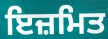
ਇਜ਼ਮਿਤ